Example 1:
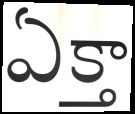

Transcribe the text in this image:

ఏక్తా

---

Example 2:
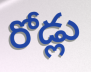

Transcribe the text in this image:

రోడ్లు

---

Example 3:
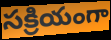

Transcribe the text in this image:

సక్రియంగా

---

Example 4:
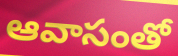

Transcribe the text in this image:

ఆవాసంతో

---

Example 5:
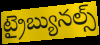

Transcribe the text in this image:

ట్రైబ్యునల్స్